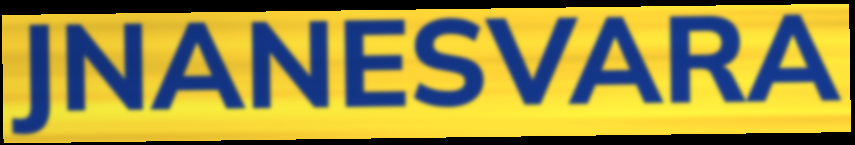
JNANESVARA